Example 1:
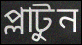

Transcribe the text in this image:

প্লাটুন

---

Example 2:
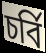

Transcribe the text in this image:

চর্বি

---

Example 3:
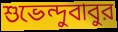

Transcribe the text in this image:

শুভেন্দুবাবুর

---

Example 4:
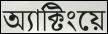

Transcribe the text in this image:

অ্যাক্টিংয়ে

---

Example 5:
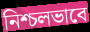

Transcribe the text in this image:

নিশ্চলভাবে